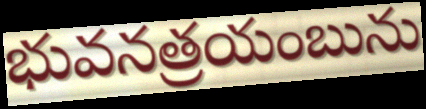
భువనత్రయంబును